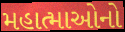
મહાત્માઓનો